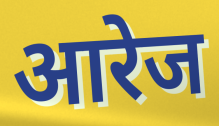
आरेज